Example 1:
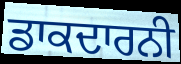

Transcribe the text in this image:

ਡਾਕਦਾਰਨੀ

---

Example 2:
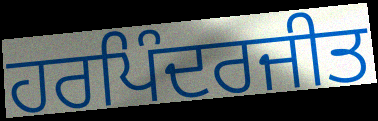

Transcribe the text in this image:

ਹਰਪਿੰਦਰਜੀਤ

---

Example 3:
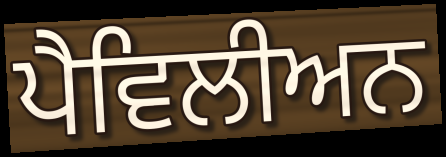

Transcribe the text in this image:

ਪੈਵਿਲੀਅਨ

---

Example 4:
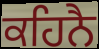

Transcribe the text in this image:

ਕਹਿਨੈ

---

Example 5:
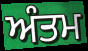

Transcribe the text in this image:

ਅੰਤਮ